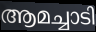
ആമച്ചാടി